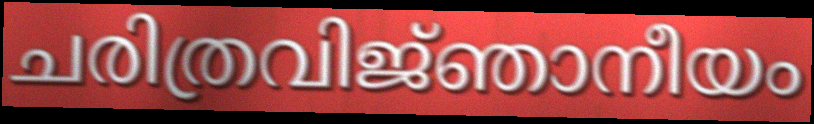
ചരിത്രവിജ്‌ഞാനീയം